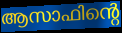
ആസാഫിന്റെ